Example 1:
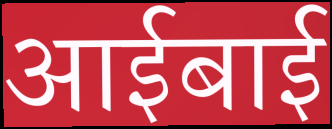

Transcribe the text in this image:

आईबाई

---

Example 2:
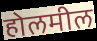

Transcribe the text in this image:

होलमील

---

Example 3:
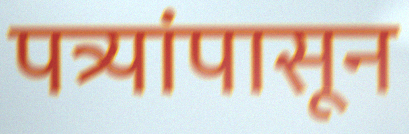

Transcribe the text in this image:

पत्र्यांपासून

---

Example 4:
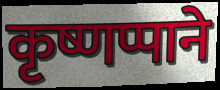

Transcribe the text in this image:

कृष्णप्पाने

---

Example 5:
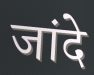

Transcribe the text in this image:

जांदे